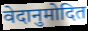
वेदानुमोदित